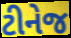
ટીનેજ